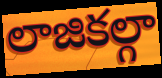
లాజికల్గా